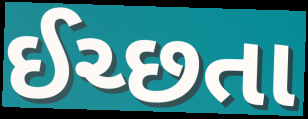
ઈચ્છતા